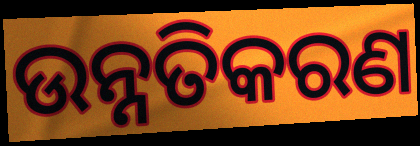
ଉନ୍ନତିକରଣ